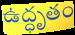
ఉద్ధృతం